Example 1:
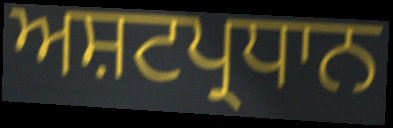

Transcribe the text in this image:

ਅਸ਼ਟਪ੍ਰਧਾਨ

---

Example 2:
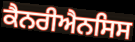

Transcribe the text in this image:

ਕੈਨਰੀਐਨਸਿਸ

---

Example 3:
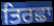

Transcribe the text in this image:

ਤਿਰਛਾ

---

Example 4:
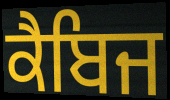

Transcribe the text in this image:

ਕੈਬਿਜ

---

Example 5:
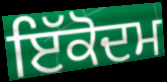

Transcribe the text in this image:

ਇੱਕੋਦਮ